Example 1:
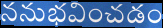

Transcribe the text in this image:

ననుభవించడం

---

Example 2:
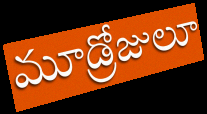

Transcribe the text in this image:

మూడ్రోజులూ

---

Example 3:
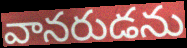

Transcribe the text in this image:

వానరుడను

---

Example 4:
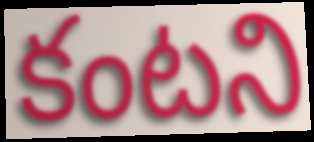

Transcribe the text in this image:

కంటని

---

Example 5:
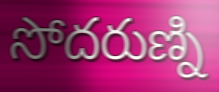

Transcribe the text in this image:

సోదరుణ్ని